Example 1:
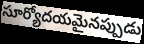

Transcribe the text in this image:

సూర్యోదయమైనప్పుడు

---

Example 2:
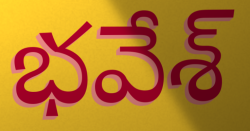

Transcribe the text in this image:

భవేశ్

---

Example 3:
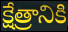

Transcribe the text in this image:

క్షేత్రానికి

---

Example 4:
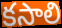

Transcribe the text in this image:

కసాలి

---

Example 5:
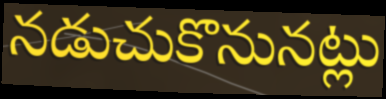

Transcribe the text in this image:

నడుచుకొనునట్లు